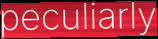
peculiarly